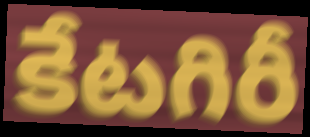
కేటగిరీ